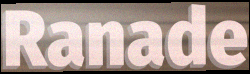
Ranade